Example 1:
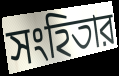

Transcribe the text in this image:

সংহিতার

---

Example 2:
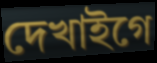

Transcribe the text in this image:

দেখাইগে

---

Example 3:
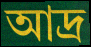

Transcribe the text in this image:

আদ্র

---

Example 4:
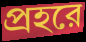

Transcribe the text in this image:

প্রহরে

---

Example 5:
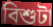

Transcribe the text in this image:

বিশুটা